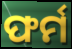
ଫର୍ମ